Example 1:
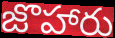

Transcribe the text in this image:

జొహారు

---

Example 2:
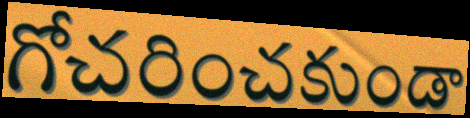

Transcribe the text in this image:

గోచరించకుండా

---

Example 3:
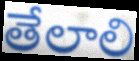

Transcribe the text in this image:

తేలాలి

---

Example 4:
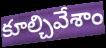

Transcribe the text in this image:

కూల్చివేశాం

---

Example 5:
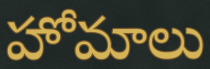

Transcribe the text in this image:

హోమాలు